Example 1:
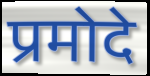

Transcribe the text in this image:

प्रमोदे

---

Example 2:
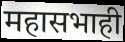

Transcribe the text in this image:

महासभाही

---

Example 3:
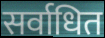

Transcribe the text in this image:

सर्वाधित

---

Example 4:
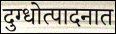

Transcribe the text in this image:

दुग्धोत्पादनात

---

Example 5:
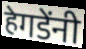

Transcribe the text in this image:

हेगडेंनी